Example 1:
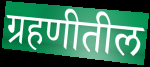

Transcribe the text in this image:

ग्रहणीतील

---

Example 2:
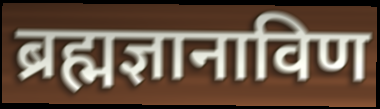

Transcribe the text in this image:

ब्रह्मज्ञानाविण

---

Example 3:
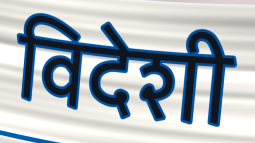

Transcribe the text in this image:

विदेशी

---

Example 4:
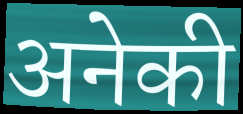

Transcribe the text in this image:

अनेकी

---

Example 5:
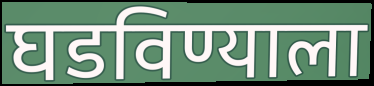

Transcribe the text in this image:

घडविण्याला